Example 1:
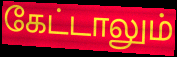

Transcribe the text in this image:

கேட்டாலும்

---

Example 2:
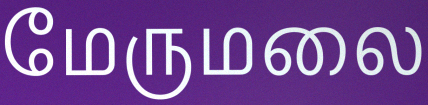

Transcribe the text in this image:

மேருமலை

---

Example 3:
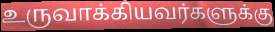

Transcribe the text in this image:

உருவாக்கியவர்களுக்கு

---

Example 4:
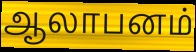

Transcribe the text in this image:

ஆலாபனம்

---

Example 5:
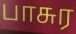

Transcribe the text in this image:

பாசுர